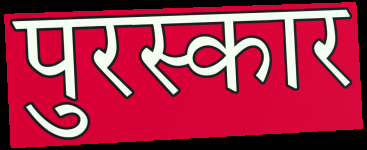
पुरस्कार